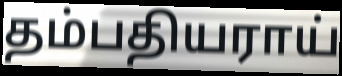
தம்பதியராய்